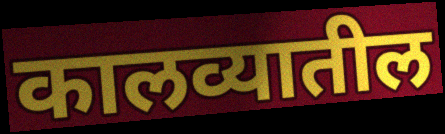
कालव्यातील